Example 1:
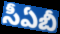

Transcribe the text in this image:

సీఏబీ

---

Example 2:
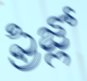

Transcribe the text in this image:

ఫ్రిజ్లో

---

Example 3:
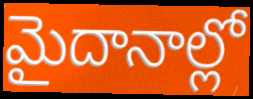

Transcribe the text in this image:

మైదానాల్లో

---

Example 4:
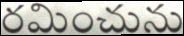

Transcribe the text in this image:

రమించును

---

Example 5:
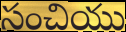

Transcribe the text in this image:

సంచియు